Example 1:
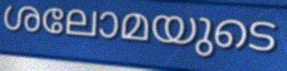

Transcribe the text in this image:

ശലോമയുടെ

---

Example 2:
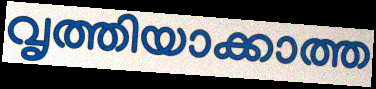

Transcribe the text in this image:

വൃത്തിയാക്കാത്ത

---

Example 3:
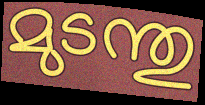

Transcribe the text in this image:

മുടന്തു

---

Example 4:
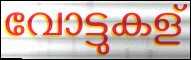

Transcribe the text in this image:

വോട്ടുകള്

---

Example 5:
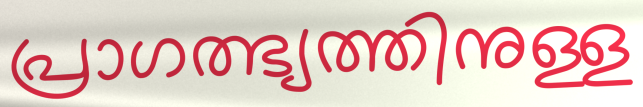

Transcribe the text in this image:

പ്രാഗത്ഭ്യത്തിനുള്ള